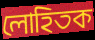
লোহিতক